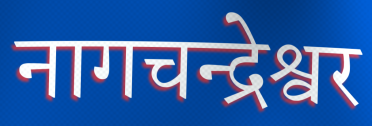
नागचन्द्रेश्वर